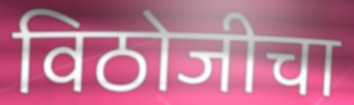
विठोजीचा